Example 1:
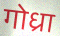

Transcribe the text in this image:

गोध्रा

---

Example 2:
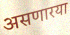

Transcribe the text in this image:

असणारया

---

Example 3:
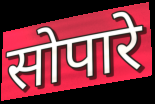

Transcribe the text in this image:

सोपारे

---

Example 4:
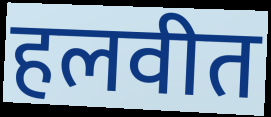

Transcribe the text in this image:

हलवीत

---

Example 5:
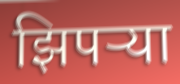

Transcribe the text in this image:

झिपऱ्या